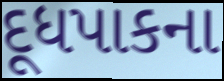
દૂધપાકના